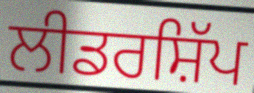
ਲੀਡਰਸ਼ਿੱਪ